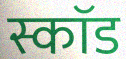
स्कॉड